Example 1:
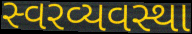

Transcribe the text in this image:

સ્વરવ્યવસ્થા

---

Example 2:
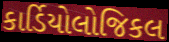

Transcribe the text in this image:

કાર્ડિયોલોજિકલ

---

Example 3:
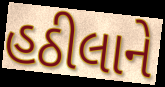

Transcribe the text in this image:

હઠીલાને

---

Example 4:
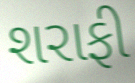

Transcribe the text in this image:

શરાફી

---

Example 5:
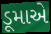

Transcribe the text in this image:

ડૂમાએ